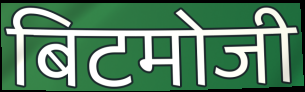
बिटमोजी